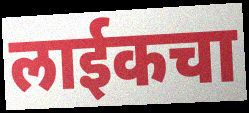
लाईकचा